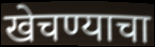
खेचण्याचा